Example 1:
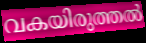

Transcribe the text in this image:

വകയിരുത്തൽ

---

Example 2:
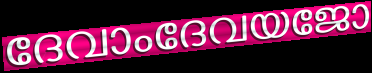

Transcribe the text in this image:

ദേവാംദേവയജോ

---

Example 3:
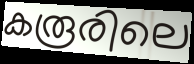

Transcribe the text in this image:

കരൂരിലെ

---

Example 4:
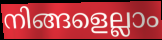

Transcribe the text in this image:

നിങ്ങളെല്ലാം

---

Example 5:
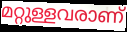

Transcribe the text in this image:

മറ്റുള്ളവരാണ്